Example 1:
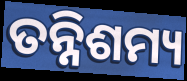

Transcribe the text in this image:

ତନ୍ନିଶମ୍ୟ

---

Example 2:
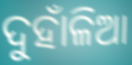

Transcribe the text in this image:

ଦୁହାଁଳିଆ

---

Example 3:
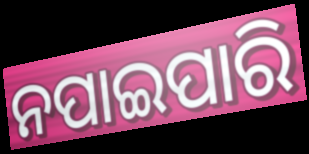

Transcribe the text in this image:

ନପାଇପାରି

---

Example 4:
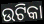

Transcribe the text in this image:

ଉଟିକା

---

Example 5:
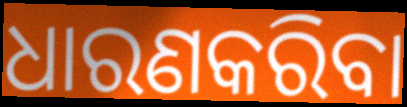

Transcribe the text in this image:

ଧାରଣକରିବା